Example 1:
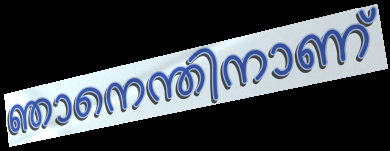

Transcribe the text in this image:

ഞാനെന്തിനാണ്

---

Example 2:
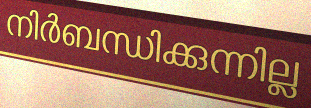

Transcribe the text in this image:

നിർബന്ധിക്കുന്നില്ല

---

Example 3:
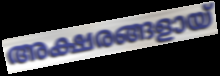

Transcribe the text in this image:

അക്ഷരങ്ങളായ്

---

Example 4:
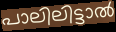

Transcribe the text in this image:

പാലിലിട്ടാൽ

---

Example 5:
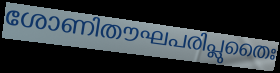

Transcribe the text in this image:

ശോണിതൗഘപരിപ്ലുതൈഃ